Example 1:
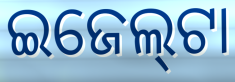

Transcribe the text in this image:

ଇଜେଲ୍‍ଟା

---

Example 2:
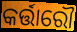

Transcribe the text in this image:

କର୍ତ୍ତାରୌ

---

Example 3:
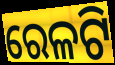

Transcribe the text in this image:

ରେଳଟି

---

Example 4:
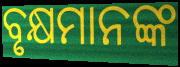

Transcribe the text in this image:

ବୃକ୍ଷମାନଙ୍କ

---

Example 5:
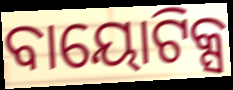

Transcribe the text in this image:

ବାୟୋଟିକ୍ସ